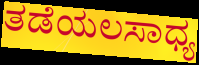
ತಡೆಯಲಸಾಧ್ಯ